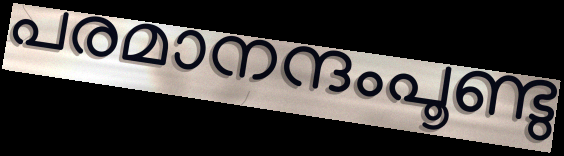
പരമാനന്ദംപൂണ്ടു